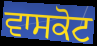
ਵਾਸਕੋਟ